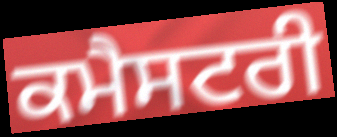
ਕਮੈਸਟਰੀ